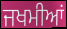
ਜਖਮੀਆਂ